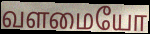
வளமையோ